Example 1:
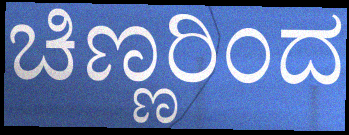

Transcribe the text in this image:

ಚಿಣ್ಣರಿಂದ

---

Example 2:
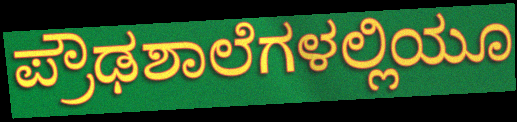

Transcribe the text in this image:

ಪ್ರೌಢಶಾಲೆಗಳಲ್ಲಿಯೂ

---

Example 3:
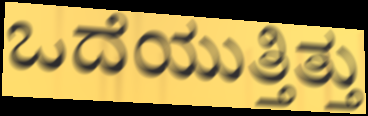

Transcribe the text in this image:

ಒದೆಯುತ್ತಿತ್ತು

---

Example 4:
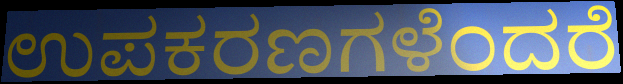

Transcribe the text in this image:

ಉಪಕರಣಗಳೆಂದರೆ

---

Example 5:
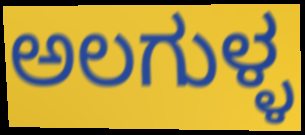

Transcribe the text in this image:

ಅಲಗುಳ್ಳ